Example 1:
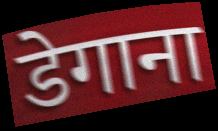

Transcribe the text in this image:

डेगाना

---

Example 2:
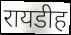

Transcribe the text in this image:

रायडीह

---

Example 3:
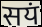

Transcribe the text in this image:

सयं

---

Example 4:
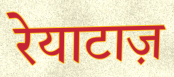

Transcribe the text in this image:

रेयाटाज़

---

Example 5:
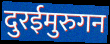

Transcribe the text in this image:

दुरईमुरुगन